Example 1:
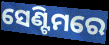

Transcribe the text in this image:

ସେଣ୍ଟିମରେ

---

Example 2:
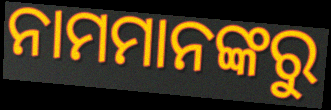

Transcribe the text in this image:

ନାମମାନଙ୍କରୁ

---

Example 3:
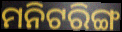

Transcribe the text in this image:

ମନିଟରିଙ୍ଗ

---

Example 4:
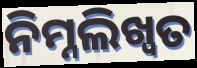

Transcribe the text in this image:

ନିମ୍ନଲିଖ୍ବତ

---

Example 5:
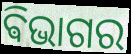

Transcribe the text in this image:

ଵିଭାଗର